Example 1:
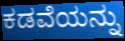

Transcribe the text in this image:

ಕಡವೆಯನ್ನು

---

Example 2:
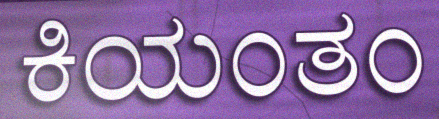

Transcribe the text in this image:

ಕಿಯಂತಂ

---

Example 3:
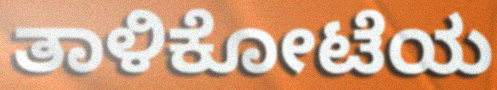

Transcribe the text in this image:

ತಾಳಿಕೋಟೆಯ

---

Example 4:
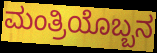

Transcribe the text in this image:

ಮಂತ್ರಿಯೊಬ್ಬನ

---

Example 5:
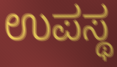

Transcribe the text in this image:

ಉಪಸ್ಥ